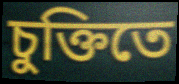
চুক্তিতে